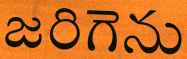
జరిగెను